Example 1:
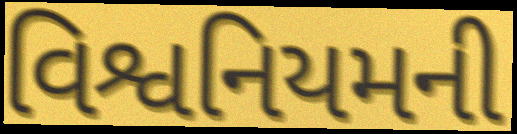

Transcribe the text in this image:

વિશ્વનિયમની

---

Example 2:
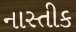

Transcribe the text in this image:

નાસ્તીક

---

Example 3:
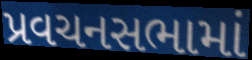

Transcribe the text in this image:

પ્રવચનસભામાં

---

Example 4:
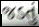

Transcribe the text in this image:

જડતું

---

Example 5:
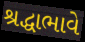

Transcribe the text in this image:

શ્રદ્ધાભાવે